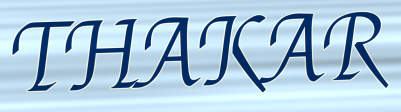
THAKAR